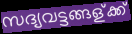
സദ്യവട്ടങ്ങള്ക്ക്